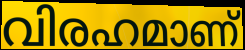
വിരഹമാണ്